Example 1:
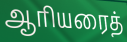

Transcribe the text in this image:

ஆரியரைத்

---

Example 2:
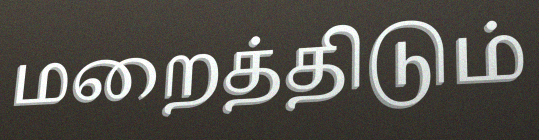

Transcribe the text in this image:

மறைத்திடும்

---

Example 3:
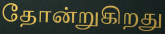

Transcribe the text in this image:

தோன்றுகிறது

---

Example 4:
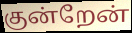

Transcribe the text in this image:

குன்றேன்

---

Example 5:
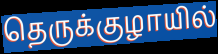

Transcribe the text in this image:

தெருக்குழாயில்